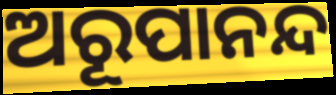
ଅରୂପାନନ୍ଦ